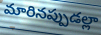
మారినప్పుడల్లా